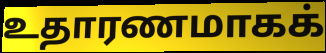
உதாரணமாகக்